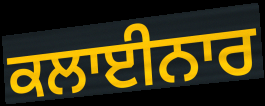
ਕਲਾਈਨਾਰ